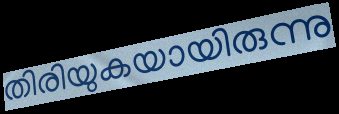
തിരിയുകയായിരുന്നു